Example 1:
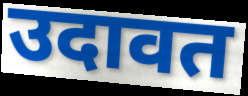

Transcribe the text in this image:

उदावत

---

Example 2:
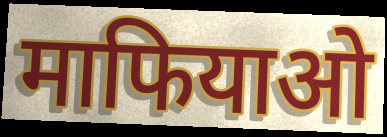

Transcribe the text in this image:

माफियाओ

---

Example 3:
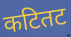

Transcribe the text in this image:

कटितट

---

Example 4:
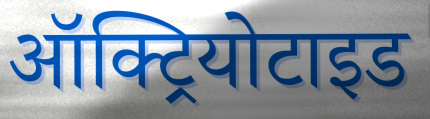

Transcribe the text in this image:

ऑक्ट्रियोटाइड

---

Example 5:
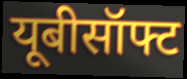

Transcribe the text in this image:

यूबीसॉफ्ट